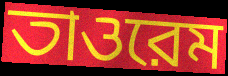
তাওরেম